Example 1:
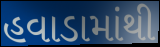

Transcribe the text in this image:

હવાડામાંથી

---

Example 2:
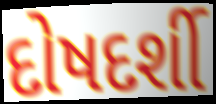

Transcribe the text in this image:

દોષદર્શી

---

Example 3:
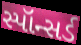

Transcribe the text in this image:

સ્પૉન્સર્ડ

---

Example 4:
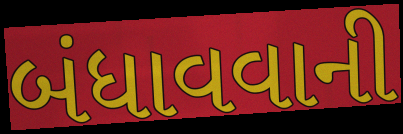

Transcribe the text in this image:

બંધાવવાની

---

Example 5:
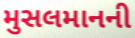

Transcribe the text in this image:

મુસલમાનની